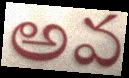
అవ